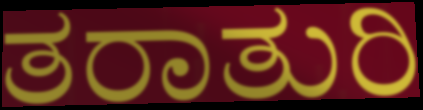
ತರಾತುರಿ